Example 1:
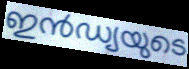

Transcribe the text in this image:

ഇൻഡ്യയുടെ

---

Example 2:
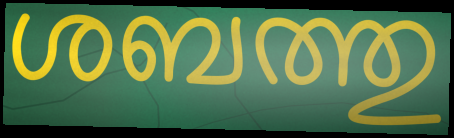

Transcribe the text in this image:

ശബത്തു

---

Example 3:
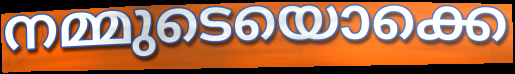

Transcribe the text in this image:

നമ്മുടെയൊക്കെ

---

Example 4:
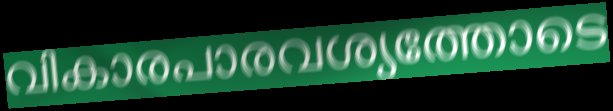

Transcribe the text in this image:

വികാരപാരവശ്യത്തോടെ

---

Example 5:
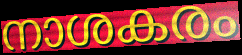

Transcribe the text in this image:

നാശകരം